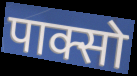
पाक्सो